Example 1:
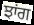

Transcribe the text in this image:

ਝਾਂਗ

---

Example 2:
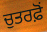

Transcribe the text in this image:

ਚੁਤਰਫ਼ੋਂ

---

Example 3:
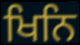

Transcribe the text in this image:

ਖਿਨਿ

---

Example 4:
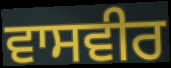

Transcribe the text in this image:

ਵਾਸਵੀਰ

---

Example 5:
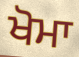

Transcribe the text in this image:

ਖੋਮਾ